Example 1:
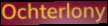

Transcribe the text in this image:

Ochterlony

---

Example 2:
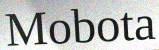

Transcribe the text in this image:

Mobota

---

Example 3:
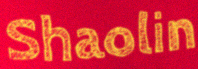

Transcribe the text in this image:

Shaolin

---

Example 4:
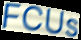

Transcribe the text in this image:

FCUs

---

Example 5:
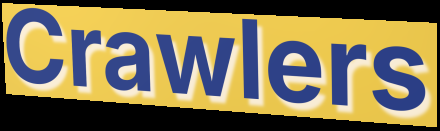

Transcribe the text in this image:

Crawlers